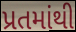
પ્રતમાંથી